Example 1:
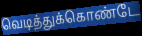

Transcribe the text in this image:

வெடித்துக்கொண்டே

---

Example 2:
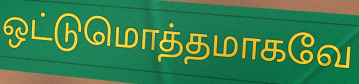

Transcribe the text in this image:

ஒட்டுமொத்தமாகவே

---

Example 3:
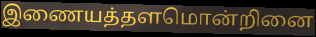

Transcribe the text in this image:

இணையத்தளமொன்றினை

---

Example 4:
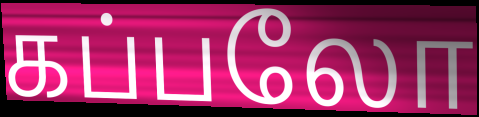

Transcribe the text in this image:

கப்பலோ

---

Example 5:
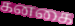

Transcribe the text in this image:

கனகை